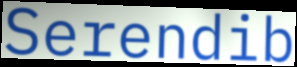
Serendib